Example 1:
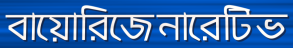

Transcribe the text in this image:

বায়োরিজেনারেটিভ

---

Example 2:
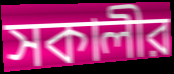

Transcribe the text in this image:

সকালীর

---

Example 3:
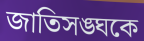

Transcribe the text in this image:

জাতিসঙ্ঘকে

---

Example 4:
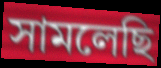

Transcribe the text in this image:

সামলেছি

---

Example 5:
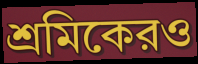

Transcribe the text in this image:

শ্রমিকেরও